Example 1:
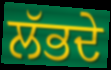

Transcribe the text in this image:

ਲੱਭਦੇ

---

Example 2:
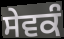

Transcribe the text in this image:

ਸੇਵਕੰ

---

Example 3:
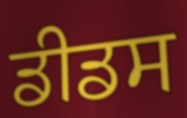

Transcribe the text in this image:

ਡੀਡਸ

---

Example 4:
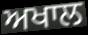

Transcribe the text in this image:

ਅਖਾਲ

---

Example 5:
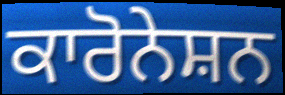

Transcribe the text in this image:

ਕਾਰੋਨੇਸ਼ਨ